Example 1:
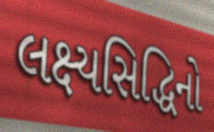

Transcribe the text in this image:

લક્ષ્યસિદ્ધિનો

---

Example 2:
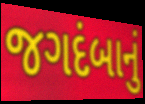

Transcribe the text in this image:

જગદંબાનું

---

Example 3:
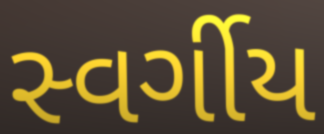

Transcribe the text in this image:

સ્વર્ગીય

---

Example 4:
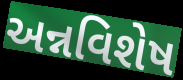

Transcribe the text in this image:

અન્નવિશેષ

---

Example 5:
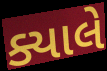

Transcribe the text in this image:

ક્યાલે